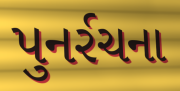
પુનર્રચના